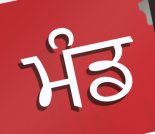
ਮੰਡ